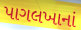
પાગલખાનાં